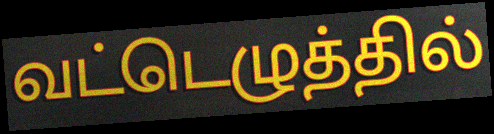
வட்டெழுத்தில்